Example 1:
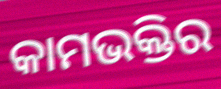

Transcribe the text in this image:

କାମଭକ୍ତିର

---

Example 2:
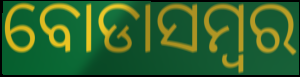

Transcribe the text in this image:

ବୋଡାସମ୍ବର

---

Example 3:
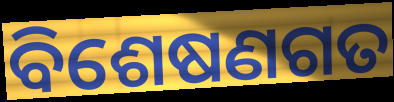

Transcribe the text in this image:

ବିଶେଷଣଗତ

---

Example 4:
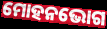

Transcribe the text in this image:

ମୋହନଭୋଗ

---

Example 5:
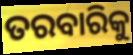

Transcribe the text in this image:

ତରବାରିକୁ